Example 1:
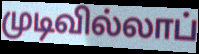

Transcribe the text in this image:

முடிவில்லாப்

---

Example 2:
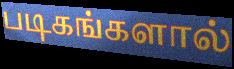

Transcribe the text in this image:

படிகங்களால்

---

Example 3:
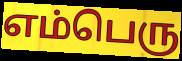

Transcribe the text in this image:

எம்பெரு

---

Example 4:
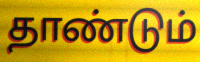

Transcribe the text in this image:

தாண்டும்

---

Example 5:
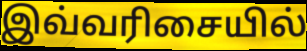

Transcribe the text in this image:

இவ்வரிசையில்